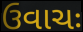
ઉવાચઃ